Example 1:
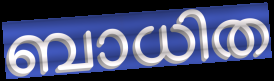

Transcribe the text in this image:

ബാധിത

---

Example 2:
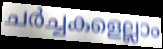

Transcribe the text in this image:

ചർച്ചകളെല്ലാം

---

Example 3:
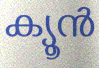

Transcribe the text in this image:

ക്യൂൻ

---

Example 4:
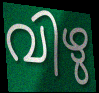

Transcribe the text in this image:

വിഴു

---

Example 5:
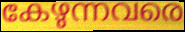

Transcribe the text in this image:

കേഴുന്നവരെ